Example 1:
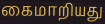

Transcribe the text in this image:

கைமாறியது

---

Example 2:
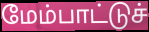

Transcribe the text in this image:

மேம்பாட்டுச்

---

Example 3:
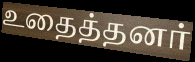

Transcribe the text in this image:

உதைத்தனர்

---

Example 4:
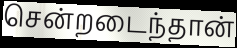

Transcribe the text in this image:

சென்றடைந்தான்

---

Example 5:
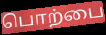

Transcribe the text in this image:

பொற்பை